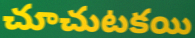
చూచుటకయి